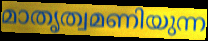
മാതൃത്വമണിയുന്ന